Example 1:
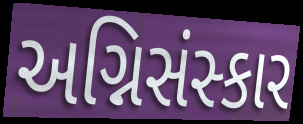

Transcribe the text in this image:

અગ્નિસંસ્કાર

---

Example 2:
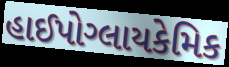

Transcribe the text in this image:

હાઈપોગ્લાયકેમિક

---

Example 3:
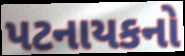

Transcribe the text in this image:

પટનાયકનો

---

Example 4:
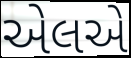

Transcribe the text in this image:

એલએ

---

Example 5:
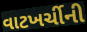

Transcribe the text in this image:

વાટખર્ચીની